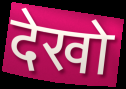
देखो